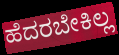
ಹೆದರಬೇಕಿಲ್ಲ